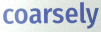
coarsely